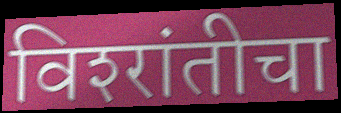
विश्रांतीचा